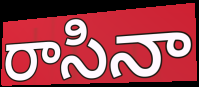
రాసినా